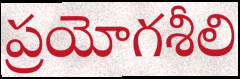
ప్రయోగశీలి